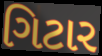
ગિટાર